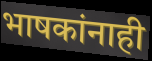
भाषकांनाही